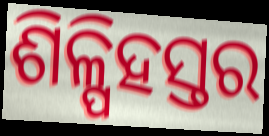
ଶିଳ୍ପିହସ୍ତର